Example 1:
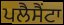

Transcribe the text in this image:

ਪਲੈਸੈਂਟਾ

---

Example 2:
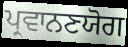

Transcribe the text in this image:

ਪ੍ਰਵਾਨਣਯੋਗ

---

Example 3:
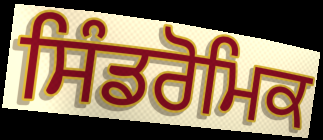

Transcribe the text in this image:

ਸਿੰਡਰੋਮਿਕ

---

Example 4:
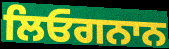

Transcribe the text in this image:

ਲਿਓਗਨਾਨ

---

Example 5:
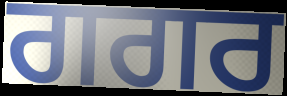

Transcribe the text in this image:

ਗਗਰ